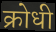
क्रोधी